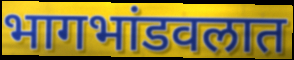
भागभांडवलात